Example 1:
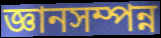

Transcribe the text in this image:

জ্ঞানসম্পন্ন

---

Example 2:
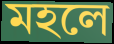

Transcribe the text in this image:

মহলে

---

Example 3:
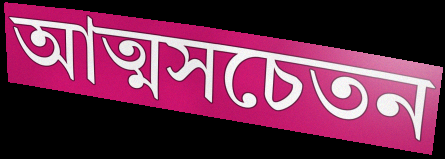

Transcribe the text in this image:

আত্মসচেতন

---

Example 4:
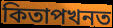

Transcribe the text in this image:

কিতাপখনত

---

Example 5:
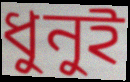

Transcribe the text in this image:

ধুনুই